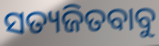
ସତ୍ୟଜିତବାବୁ